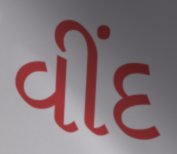
વીંદ